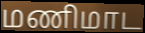
மணிமாட